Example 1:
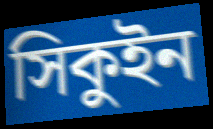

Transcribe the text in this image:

সিকুইন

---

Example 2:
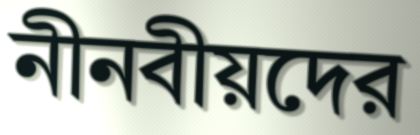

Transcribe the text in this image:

নীনবীয়দের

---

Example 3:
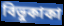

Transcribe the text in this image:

বিভুকাকা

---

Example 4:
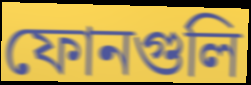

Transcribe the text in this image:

ফোনগুলি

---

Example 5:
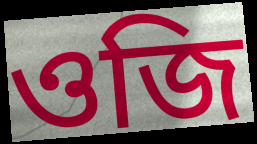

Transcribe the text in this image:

ওজি